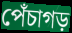
পেঁচাগড়